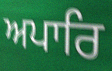
ਅਪਾਰਿ